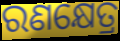
ରଣକ୍ଷେତ୍ର